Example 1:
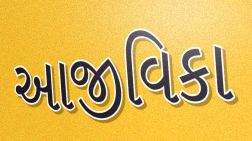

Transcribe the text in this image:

આજીવિકા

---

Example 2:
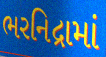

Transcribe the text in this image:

ભરનિદ્રામાં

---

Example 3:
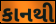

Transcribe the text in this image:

કાનથી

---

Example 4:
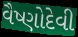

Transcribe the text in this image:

વૈષ્ણોદેવી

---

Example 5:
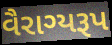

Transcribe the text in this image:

વૈરાગ્યરૂપ